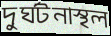
দুর্ঘটনাস্থল